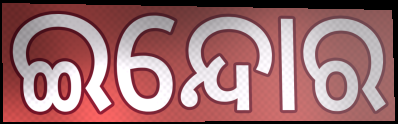
ଇନ୍ଦୋର